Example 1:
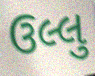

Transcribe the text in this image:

ઉલ્લુ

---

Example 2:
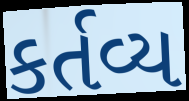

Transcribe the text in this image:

કર્તવ્ય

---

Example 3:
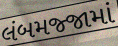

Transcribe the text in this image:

લંબમજ્જામાં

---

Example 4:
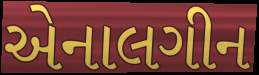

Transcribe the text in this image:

એનાલગીન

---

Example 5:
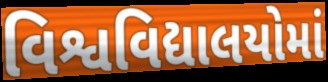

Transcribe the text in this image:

વિશ્વવિદ્યાલયોમાં